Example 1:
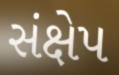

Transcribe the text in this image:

સંક્ષેપ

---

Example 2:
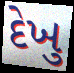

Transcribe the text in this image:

દેખુ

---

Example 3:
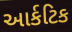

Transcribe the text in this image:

આર્કટિક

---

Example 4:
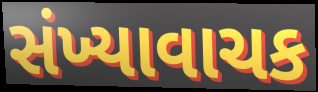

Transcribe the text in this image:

સંખ્યાવાચક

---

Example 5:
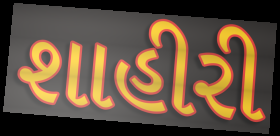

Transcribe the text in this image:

શાહીરી